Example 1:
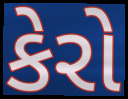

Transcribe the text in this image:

કેરો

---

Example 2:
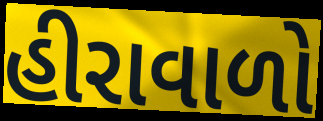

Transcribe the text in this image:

હીરાવાળો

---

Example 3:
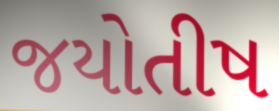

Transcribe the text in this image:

જયોતીષ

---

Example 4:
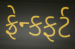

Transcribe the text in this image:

ફ્રેન્કફર્ટ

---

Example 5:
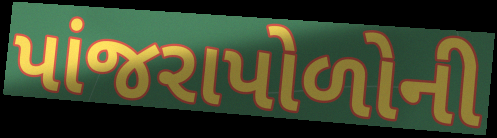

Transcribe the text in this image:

પાંજરાપોળોની